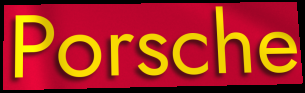
Porsche